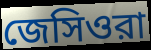
জেসিওরা